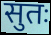
सुतः